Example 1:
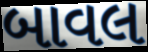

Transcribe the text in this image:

બાવલ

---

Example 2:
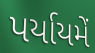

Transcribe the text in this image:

પર્યાયમેં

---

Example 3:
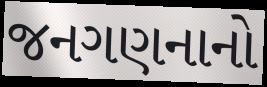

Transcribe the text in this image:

જનગણનાનો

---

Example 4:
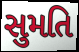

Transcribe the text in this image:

સુમતિ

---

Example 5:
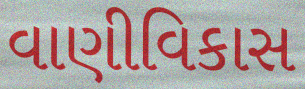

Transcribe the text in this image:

વાણીવિકાસ